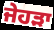
ਜੇਹੜਾ